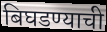
बिघडण्याची